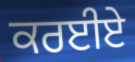
ਕਰਈਏ